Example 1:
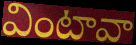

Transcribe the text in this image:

వింటావా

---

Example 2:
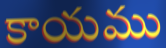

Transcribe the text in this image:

కాయము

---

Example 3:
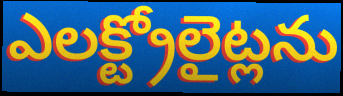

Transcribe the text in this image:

ఎలక్ట్రోలైట్లను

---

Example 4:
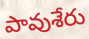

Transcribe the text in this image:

పావుశేరు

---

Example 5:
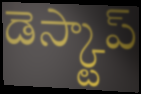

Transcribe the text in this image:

డెస్క్టాప్